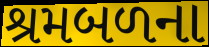
શ્રમબળના